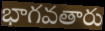
భాగవతారు